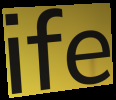
ife